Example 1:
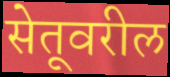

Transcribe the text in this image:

सेतूवरील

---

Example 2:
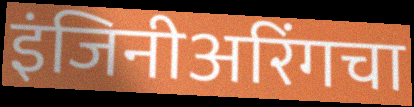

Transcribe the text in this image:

इंजिनीअरिंगचा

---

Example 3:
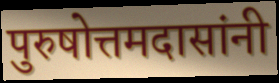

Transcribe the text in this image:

पुरुषोत्तमदासांनी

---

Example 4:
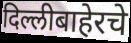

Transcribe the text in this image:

दिल्लीबाहेरचे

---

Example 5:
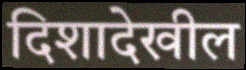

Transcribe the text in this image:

दिशादेखील